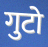
गुटो